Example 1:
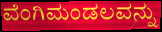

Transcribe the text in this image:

ವೆಂಗಿಮಂಡಲವನ್ನು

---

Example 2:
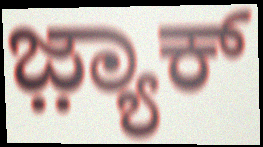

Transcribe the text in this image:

ಜ಼್ಯಾಕ್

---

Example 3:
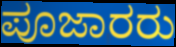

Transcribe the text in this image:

ಪೂಜಾರರು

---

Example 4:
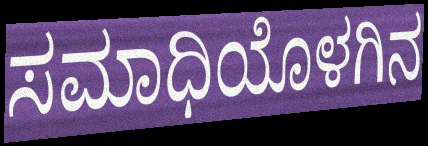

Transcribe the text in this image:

ಸಮಾಧಿಯೊಳಗಿನ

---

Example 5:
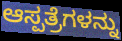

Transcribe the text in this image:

ಆಸ್ಪತ್ರೆಗಳನ್ನು